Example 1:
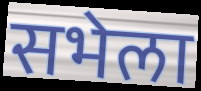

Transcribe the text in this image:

सभेला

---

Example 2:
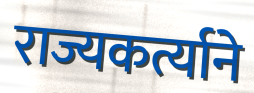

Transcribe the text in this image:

राज्यकर्त्याने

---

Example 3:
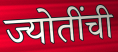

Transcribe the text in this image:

ज्योतींची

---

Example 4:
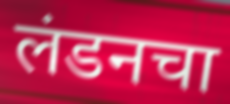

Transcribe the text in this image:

लंडनचा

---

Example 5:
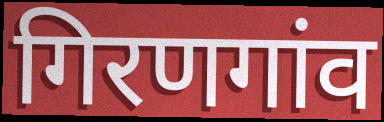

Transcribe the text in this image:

गिरणगांव